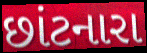
છાંટનારા